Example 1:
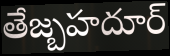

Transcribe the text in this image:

తేజ్బహదూర్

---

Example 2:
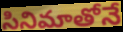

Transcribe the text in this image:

సినిమాతోనే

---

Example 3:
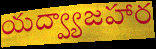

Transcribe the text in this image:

యద్వ్యాజహార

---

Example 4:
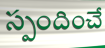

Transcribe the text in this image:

స్పందించే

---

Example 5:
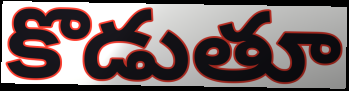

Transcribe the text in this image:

కొడుతూ